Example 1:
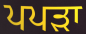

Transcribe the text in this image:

ਪਪੜਾ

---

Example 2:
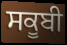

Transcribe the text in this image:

ਸਕੂਬੀ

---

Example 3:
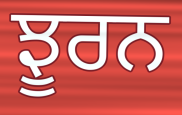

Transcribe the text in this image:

ਝੂਰਨ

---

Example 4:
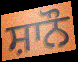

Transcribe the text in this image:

ਸ਼ਾਨੌ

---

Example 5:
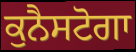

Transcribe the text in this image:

ਕੁਨੈਸਟੋਗਾ